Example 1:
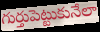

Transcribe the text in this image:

గుర్తుపెట్టుకునేలా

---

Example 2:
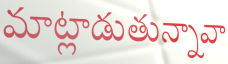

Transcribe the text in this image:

మాట్లాడుతున్నావా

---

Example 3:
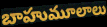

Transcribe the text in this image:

బాహుమూలాలు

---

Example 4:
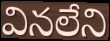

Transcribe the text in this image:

వినలేని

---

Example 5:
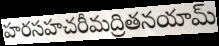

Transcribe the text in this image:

హరసహచరీమద్రితనయామ్